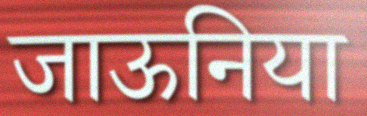
जाऊनिया